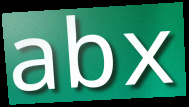
abx